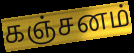
கஞ்சனம்